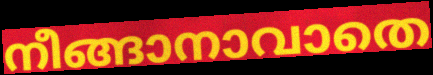
നീങ്ങാനാവാതെ